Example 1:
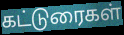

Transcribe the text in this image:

கட்டுரைகள்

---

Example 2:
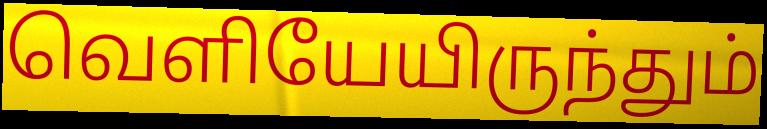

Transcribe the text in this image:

வெளியேயிருந்தும்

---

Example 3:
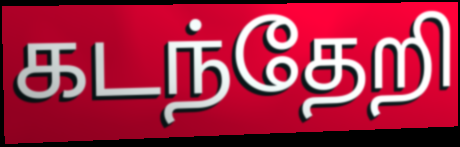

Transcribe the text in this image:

கடந்தேறி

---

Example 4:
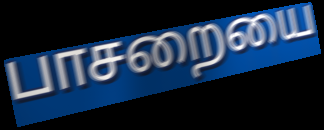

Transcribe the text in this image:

பாசறையை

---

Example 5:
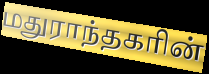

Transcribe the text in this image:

மதுராந்தகரின்